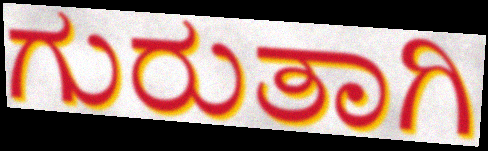
ಗುರುತಾಗಿ